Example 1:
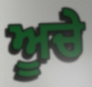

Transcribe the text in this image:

ਅੂਚੇ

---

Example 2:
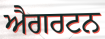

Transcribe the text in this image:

ਐਗਰਟਨ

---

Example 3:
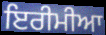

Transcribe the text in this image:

ਇਰੀਮੀਆ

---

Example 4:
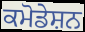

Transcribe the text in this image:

ਕਮੋਡੇਸ਼ਨ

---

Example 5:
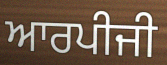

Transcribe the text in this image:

ਆਰਪੀਜੀ